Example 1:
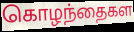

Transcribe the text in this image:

கொழந்தைகள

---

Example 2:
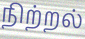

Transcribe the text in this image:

நிற்றல்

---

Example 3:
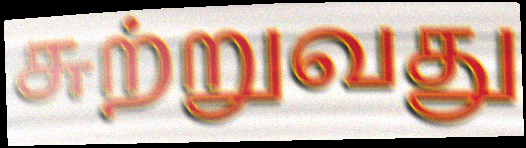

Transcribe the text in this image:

சுற்றுவது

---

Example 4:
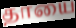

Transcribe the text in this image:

தாயை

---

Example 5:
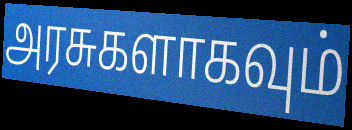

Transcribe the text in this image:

அரசுகளாகவும்